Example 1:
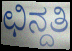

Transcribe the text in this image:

ಛಿನ್ದತಿ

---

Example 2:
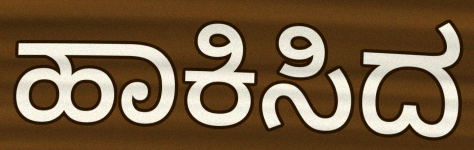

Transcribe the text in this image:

ಹಾಕಿಸಿದ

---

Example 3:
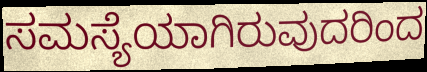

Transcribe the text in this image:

ಸಮಸ್ಯೆಯಾಗಿರುವುದರಿಂದ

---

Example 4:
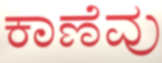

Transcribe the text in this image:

ಕಾಣೆವು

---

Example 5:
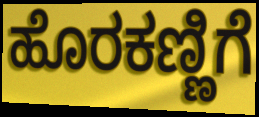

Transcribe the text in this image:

ಹೊರಕಣ್ಣಿಗೆ